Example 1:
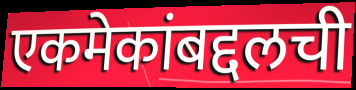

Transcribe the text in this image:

एकमेकांबद्दलची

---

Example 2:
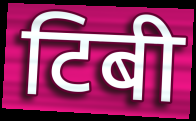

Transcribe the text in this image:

टिबी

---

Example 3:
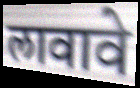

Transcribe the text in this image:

लावावे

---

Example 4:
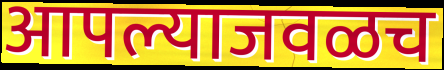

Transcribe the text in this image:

आपल्याजवळच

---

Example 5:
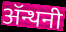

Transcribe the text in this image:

ॲन्थनी